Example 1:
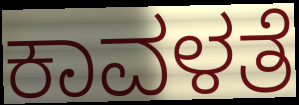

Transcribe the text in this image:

ಕಾವಳತೆ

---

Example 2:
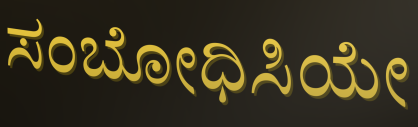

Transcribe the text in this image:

ಸಂಬೋಧಿಸಿಯೇ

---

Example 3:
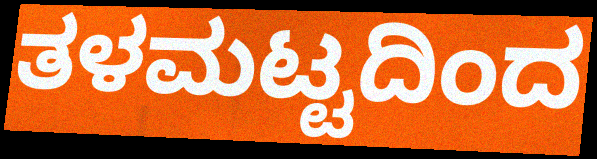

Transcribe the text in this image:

ತಳಮಟ್ಟದಿಂದ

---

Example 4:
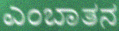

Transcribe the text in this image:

ಎಂಬಾತನ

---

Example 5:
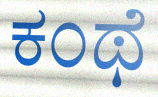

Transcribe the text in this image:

ಕಂಥೆ